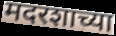
मदरशाच्या